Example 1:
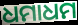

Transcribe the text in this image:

ଧମାଧମ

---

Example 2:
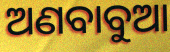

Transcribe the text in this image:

ଅଣବାବୁଆ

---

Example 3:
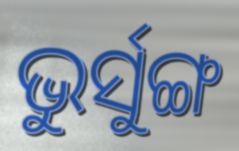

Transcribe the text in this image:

ଭୁର୍ସୁଙ୍ଗ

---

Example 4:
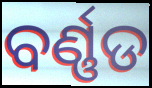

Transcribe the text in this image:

ବର୍ଣ୍ଣଡ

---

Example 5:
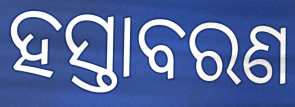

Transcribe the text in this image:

ହସ୍ତାବରଣ